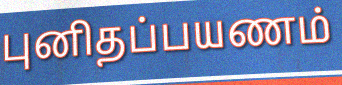
புனிதப்பயணம்